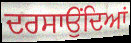
ਦਰਸਾਉਂਦਿਆਂ